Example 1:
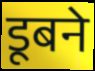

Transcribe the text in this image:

डूबने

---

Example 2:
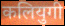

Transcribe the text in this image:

कलियुगी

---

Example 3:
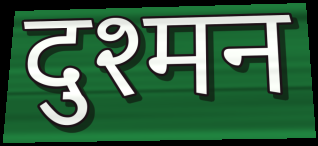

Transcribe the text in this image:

दुश्मन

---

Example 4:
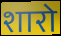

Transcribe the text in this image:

शारो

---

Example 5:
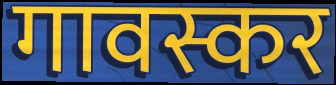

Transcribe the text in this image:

गावस्कर